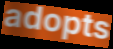
adopts